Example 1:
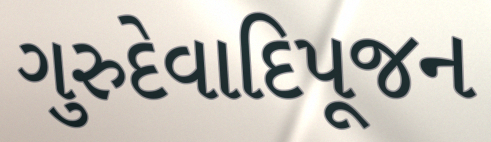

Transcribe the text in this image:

ગુરુદેવાદિપૂજન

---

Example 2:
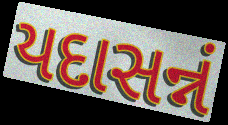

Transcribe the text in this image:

યદાસન્નં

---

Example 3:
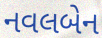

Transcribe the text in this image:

નવલબેન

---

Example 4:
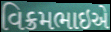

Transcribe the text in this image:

વિક્રમભાઇએ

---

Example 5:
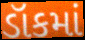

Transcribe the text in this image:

ડૉકમાં